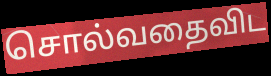
சொல்வதைவிட